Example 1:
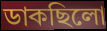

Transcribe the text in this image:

ডাকছিলো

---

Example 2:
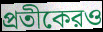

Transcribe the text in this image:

প্রতীকেরও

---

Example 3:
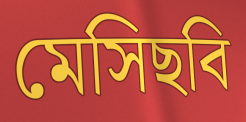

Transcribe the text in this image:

মেসিছবি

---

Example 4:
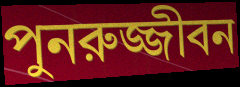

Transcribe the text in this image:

পুনরুজ্জীবন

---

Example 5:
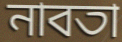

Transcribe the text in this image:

নাবতা